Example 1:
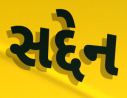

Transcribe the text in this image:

સદ્દેન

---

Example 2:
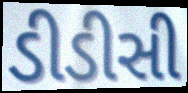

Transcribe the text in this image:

ડીડીસી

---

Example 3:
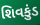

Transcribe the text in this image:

શિવકુંડ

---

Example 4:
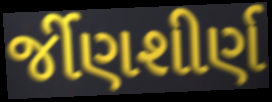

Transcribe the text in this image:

ર્જીણશીર્ણ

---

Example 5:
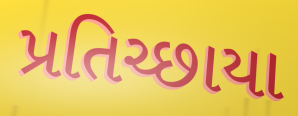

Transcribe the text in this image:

પ્રતિચ્છાયા